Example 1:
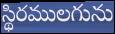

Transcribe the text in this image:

స్థిరములగును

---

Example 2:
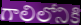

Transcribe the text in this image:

గాలిలోనికి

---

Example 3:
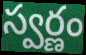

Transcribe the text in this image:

స్వర్ణం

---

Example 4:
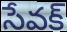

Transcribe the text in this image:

సేవక్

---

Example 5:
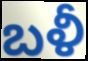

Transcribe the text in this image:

బళీ